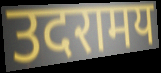
उदरामय